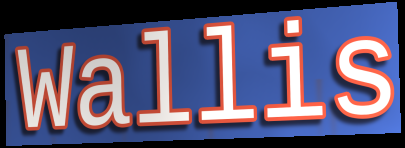
Wallis